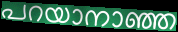
പറയാനാഞ്ഞ